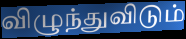
விழுந்துவிடும்